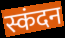
स्कंदन